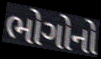
ભોગોનો